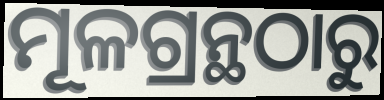
ମୂଳଗ୍ରନ୍ଥଠାରୁ